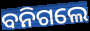
ବନିଗଲେ